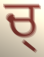
ਚ੍